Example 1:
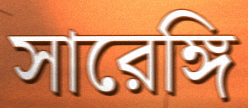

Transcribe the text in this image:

সারেঙ্গি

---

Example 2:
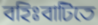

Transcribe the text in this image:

বহিঃবাটিতে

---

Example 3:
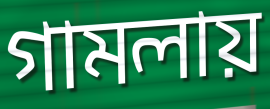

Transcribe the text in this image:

গামলায়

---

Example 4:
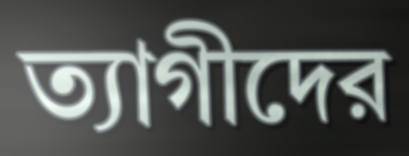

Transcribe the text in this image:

ত্যাগীদের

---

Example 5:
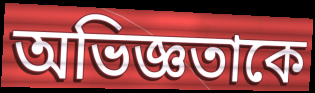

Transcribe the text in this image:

অভিজ্ঞতাকে